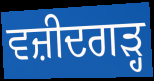
ਵਜ਼ੀਦਗੜ੍ਹ